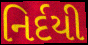
નિર્દયી